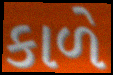
કાળે